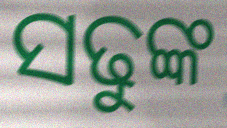
ସଢୁଙ୍କ